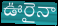
ఊరైనా